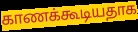
காணக்கூடியதாக